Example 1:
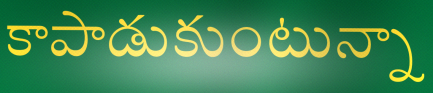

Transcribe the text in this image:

కాపాడుకుంటున్నా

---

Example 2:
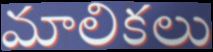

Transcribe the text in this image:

మాలికలు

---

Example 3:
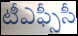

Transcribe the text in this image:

టీఎఫ్సీసీ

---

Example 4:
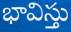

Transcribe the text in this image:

భావిస్తు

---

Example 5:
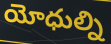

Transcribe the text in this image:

యోధుల్ని